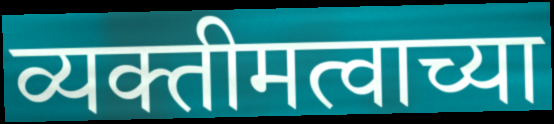
व्यक्तीमत्वाच्या